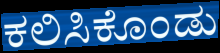
ಕಲಿಸಿಕೊಂಡು